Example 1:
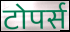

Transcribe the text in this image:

टोपर्स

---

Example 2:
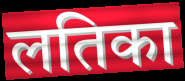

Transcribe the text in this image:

लतिका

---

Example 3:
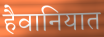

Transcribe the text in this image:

हैवानियात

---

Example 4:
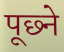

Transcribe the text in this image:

पूछ्ने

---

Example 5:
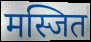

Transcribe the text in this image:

मस्जित